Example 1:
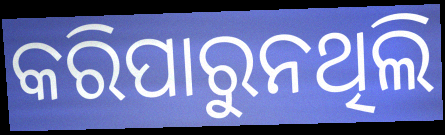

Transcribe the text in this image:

କରିପାରୁନଥିଲି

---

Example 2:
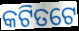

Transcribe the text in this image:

କଟିତଟେ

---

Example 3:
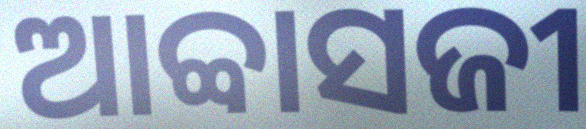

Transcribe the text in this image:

ଆବ୍ବାସଜୀ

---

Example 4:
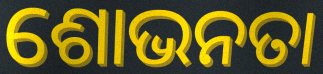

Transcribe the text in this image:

ଶୋଭନତା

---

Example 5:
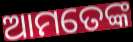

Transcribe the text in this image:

ଆମତେଙ୍କ